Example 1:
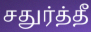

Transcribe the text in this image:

சதுர்த்தீ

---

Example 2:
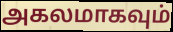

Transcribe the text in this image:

அகலமாகவும்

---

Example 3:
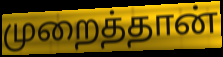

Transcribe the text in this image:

முறைத்தான்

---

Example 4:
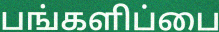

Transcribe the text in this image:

பங்களிப்பை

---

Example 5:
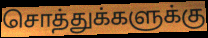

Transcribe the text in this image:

சொத்துக்களுக்கு